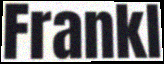
Frankl